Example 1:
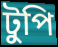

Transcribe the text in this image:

টুপি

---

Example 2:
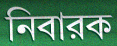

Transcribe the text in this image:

নিবারক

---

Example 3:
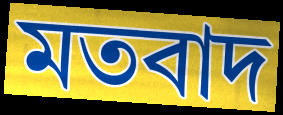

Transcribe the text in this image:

মতবাদ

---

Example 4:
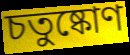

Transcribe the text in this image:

চতুষ্কোণ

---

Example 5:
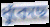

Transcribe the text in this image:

ধুঁকেছে